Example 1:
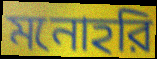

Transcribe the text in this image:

মনোহরি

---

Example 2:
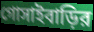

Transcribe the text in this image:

গোসাইবাড়ির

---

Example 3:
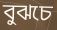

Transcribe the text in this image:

বুঝচে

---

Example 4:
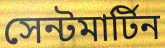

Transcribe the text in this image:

সেন্টমার্টিন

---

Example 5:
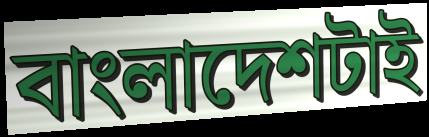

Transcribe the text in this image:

বাংলাদেশটাই